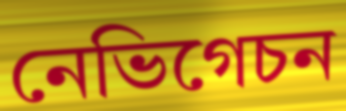
নেভিগেচন